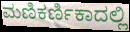
ಮಣಿಕರ್ಣಿಕಾದಲ್ಲಿ